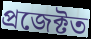
প্ৰজেক্টত